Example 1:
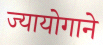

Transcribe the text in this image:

ज्यायोगाने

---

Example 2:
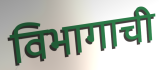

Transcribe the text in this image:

विभागाची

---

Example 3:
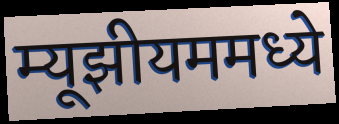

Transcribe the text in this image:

म्यूझीयममध्ये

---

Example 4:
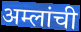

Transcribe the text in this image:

अम्‍लांची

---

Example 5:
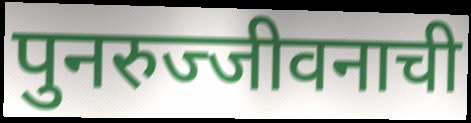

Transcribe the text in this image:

पुनरुज्जीवनाची